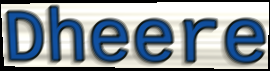
Dheere